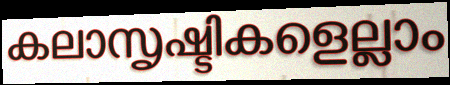
കലാസൃഷ്ടികളെല്ലാം